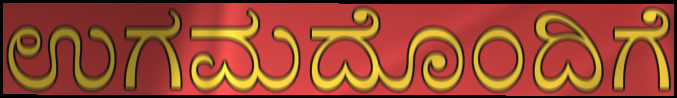
ಉಗಮದೊಂದಿಗೆ